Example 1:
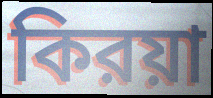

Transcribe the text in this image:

কিরয়া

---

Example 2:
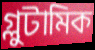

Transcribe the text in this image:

গ্লুটামিক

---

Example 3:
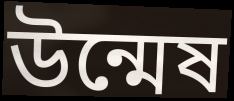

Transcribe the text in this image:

উন্মেষ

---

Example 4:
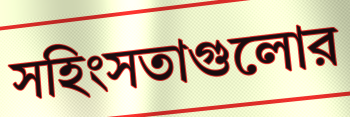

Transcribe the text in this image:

সহিংসতাগুলোর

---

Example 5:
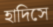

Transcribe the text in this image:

হাদিসে